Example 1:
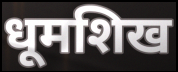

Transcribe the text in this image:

धूमशिख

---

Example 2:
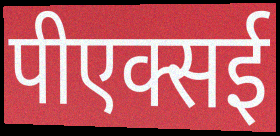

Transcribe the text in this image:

पीएक्सई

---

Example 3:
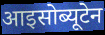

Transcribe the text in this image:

आइसोब्यूटेन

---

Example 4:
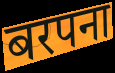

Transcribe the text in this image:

बरपना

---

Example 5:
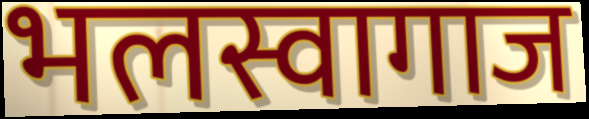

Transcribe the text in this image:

भलस्वागाज